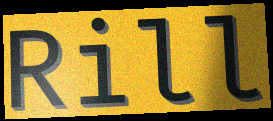
Rill